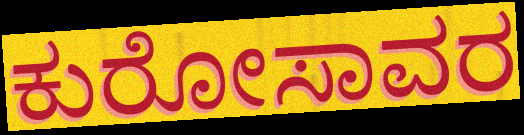
ಕುರೋಸಾವರ